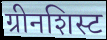
ग्रीनशिस्ट